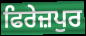
ਫਿਰੇਜ਼ਪੁਰ